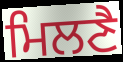
ਮਿਲਣੈ